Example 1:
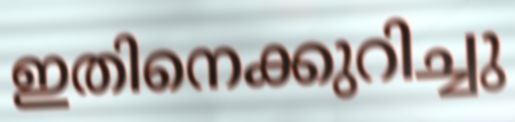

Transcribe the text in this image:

ഇതിനെക്കുറിച്ചു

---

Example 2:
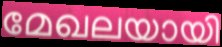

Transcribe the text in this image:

മേഖലയായി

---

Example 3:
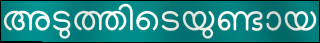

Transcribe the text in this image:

അടുത്തിടെയുണ്ടായ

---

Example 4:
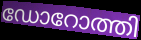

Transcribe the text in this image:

ഡോറോത്തി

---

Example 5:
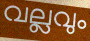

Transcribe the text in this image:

വല്ലവും